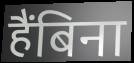
हैंबिना